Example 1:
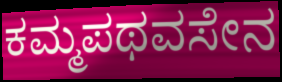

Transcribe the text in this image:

ಕಮ್ಮಪಥವಸೇನ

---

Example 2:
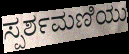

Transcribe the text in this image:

ಸ್ಪರ್ಶಮಣಿಯು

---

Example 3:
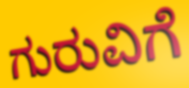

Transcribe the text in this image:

ಗುರುವಿಗೆ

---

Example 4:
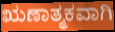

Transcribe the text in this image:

ಋಣಾತ್ಮಕವಾಗಿ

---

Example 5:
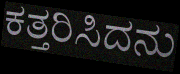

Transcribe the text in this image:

ಕತ್ತರಿಸಿದನು